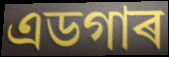
এডগাৰ